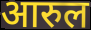
आरुल